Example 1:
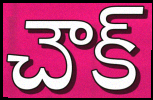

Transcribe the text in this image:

చౌక్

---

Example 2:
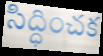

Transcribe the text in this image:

సిద్ధించక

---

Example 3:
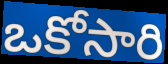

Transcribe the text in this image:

ఒకోసారి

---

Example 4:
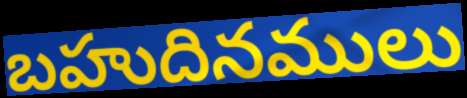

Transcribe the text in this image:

బహుదినములు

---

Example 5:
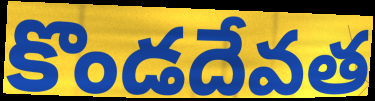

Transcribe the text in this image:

కొండదేవత